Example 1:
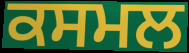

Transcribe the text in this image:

ਕਸਮਲ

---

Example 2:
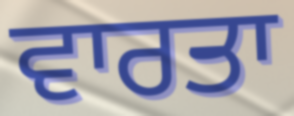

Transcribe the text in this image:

ਵਾਰਤਾ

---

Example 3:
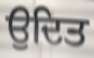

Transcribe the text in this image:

ਉਦਿਤ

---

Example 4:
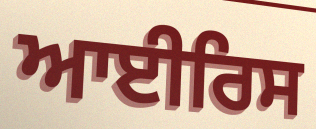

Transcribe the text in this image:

ਆਈਰਿਸ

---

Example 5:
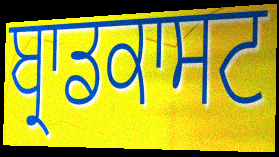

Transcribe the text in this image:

ਬ੍ਰਾਡਕਾਸਟ